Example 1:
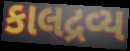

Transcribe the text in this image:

કાલદ્રવ્ય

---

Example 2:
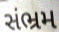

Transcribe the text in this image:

સંભ્રમ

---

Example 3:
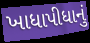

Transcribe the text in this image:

ખાધાપીધાનું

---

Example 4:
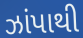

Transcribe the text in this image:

ઝાંપાથી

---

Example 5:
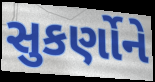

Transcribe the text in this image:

સુકર્ણોને